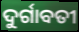
ଦୁର୍ଗାବତୀ